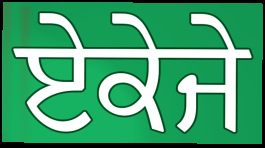
ਏਕੇਜੇ